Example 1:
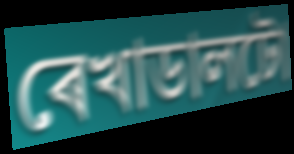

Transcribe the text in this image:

ৰেখাডালটো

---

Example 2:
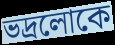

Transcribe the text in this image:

ভদ্ৰলোকে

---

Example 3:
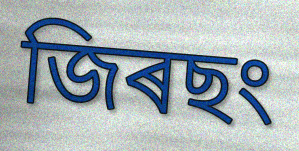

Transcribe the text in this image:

জিৰছং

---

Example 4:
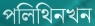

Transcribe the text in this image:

পলিথিনখন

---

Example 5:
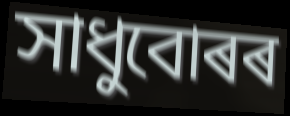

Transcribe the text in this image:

সাধুবোৰৰ